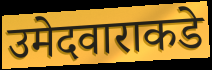
उमेदवाराकडे